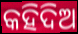
କହିଦିଅ